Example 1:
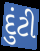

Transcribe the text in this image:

દુંટી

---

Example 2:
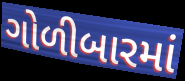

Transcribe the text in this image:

ગોળીબારમાં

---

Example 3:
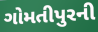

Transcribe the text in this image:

ગોમતીપુરની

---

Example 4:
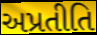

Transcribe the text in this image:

અપ્રતીતિ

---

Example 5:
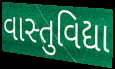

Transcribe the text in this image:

વાસ્તુવિદ્યા